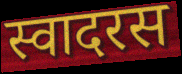
स्वादरस